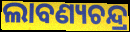
ଲାବଣ୍ୟଚନ୍ଦ୍ର